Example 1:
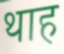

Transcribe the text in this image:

थाह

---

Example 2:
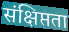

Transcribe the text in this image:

संक्षिप्तता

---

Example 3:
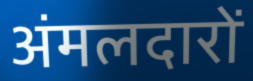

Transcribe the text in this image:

अंमलदारों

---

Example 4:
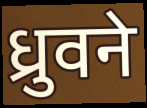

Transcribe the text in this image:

ध्रुवने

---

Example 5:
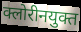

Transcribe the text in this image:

क्लोरीनयुक्त